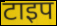
टाइप